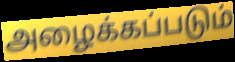
அழைக்கப்படும்